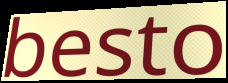
besto